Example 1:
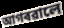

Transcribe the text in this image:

আগৰৱালে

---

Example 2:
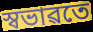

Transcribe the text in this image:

স্বভাৱতে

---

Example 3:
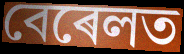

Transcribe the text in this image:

বেৰেলত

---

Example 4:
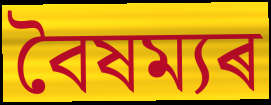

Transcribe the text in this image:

বৈষম্যৰ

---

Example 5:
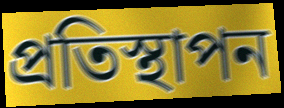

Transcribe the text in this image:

প্ৰতিস্থাপন